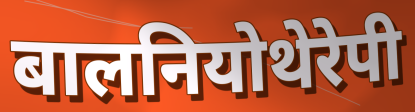
बालनियोथेरेपी